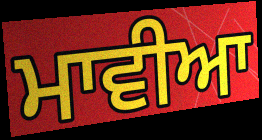
ਮਾਵੀਆ